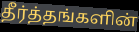
தீர்த்தங்களின்